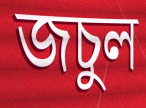
জচুল